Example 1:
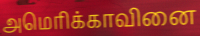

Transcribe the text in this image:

அமெரிக்காவினை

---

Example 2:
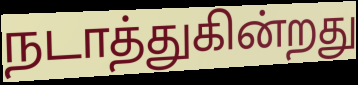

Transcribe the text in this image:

நடாத்துகின்றது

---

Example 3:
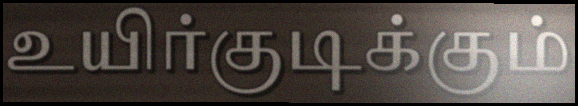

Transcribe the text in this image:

உயிர்குடிக்கும்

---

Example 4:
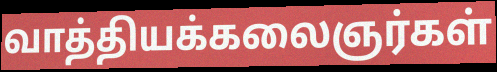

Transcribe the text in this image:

வாத்தியக்கலைஞர்கள்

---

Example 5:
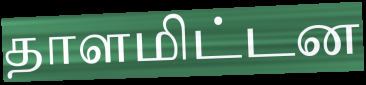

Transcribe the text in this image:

தாளமிட்டன